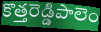
కొత్తరెడ్డిపాలెం